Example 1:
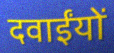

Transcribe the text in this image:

दवाईंयों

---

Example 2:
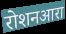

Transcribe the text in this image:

रोशनआरा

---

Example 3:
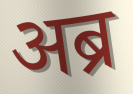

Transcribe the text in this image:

अब्र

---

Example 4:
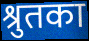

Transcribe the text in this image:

श्रुतका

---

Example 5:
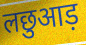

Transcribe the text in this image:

लछुआड़